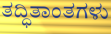
ತದ್ಧಿತಾಂತಗಳು